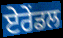
ਏਰੇਂਡਲ